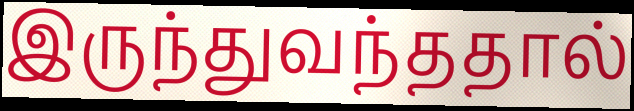
இருந்துவந்ததால்